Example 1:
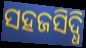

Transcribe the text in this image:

ସହଜସିଦ୍ଧି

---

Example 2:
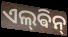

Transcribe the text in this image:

ଏଲ୍‌ଵିନ୍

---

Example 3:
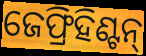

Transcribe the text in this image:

ଜେଫ୍ରିହିଣ୍ଟନ୍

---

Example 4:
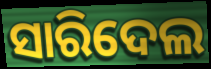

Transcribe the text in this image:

ସାରିଦେଲ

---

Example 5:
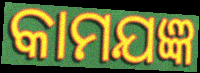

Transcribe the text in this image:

କାମଯଜ୍ଞ